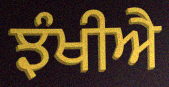
ਝੰਖੀਐ